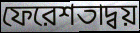
ফেরেশতাদ্বয়